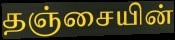
தஞ்சையின்